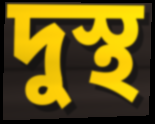
দুস্থ